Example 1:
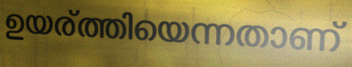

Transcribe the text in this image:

ഉയര്ത്തിയെന്നതാണ്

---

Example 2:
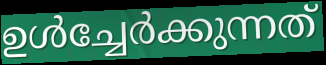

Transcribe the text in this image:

ഉൾച്ചേർക്കുന്നത്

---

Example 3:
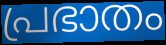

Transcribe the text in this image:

പ്രഭാതം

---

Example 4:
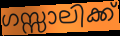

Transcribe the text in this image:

ഗസ്സാലിക്ക്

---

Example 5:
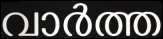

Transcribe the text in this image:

വാർത്ത